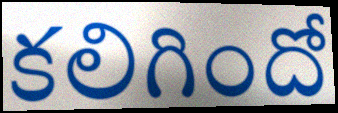
కలిగిందో